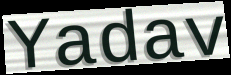
Yadav